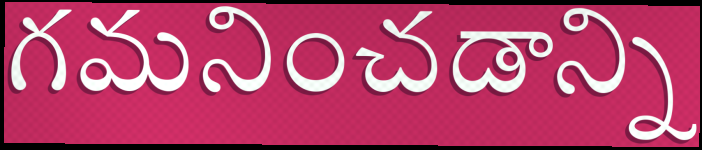
గమనించడాన్ని